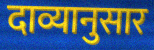
दाव्यानुसार